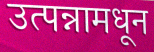
उत्पन्नामधून